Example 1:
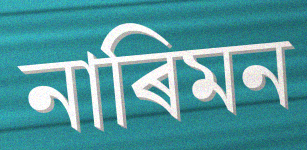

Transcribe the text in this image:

নাৰিমন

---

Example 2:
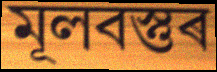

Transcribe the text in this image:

মূলবস্তুৰ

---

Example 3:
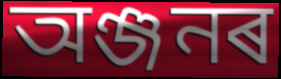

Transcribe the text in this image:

অঞ্জনৰ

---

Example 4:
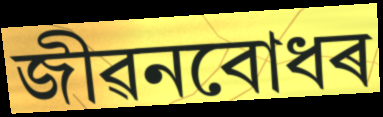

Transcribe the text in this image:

জীৱনবোধৰ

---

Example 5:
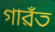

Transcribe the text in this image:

গাৱঁত